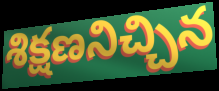
శిక్షణనిచ్చిన